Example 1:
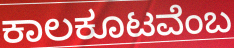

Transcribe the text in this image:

ಕಾಲಕೂಟವೆಂಬ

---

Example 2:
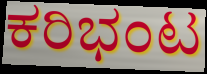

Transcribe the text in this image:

ಕರಿಭಂಟ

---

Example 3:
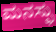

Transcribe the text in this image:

ಮನಸ್ಫು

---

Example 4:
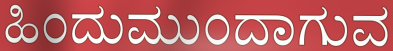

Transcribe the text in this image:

ಹಿಂದುಮುಂದಾಗುವ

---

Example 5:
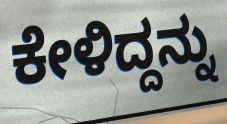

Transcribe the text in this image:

ಕೇಳಿದ್ದನ್ನು